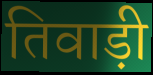
तिवाड़ी